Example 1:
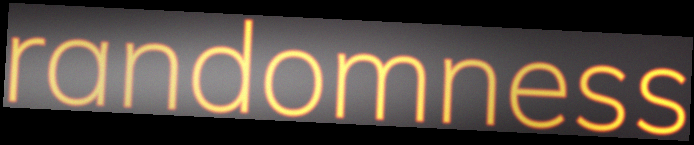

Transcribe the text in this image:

randomness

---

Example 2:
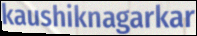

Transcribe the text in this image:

kaushiknagarkar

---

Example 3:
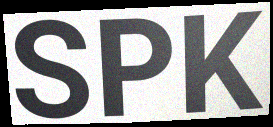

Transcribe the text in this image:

SPK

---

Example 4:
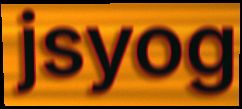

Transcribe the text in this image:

jsyog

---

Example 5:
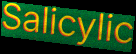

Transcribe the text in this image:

Salicylic